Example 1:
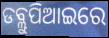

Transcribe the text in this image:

ଡବ୍ଲୁପିଆଇରେ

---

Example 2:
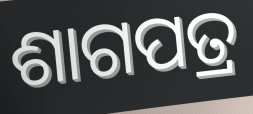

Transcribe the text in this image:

ଶାଗପତ୍ର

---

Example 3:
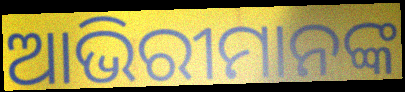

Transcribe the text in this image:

ଆଭିରୀମାନଙ୍କ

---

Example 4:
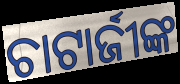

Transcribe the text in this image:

ଚାଟାର୍ଜୀଙ୍କ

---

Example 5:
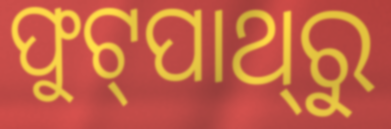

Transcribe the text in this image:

ଫୁଟ୍‌ପାଥ୍‌ରୁ